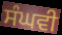
ਸੰਘਵੀ